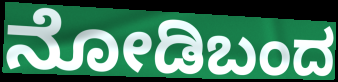
ನೋಡಿಬಂದ